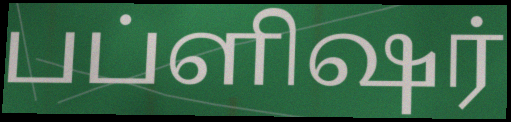
பப்ளிஷர்